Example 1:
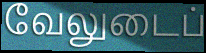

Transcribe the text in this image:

வேலுடைப்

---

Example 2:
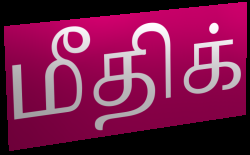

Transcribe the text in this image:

மீதிக்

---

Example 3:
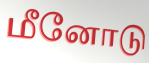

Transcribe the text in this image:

மீனோடு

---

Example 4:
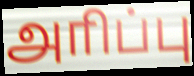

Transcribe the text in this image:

அரிப்பு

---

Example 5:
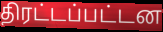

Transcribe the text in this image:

திரட்டப்பட்டன